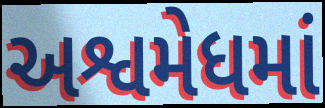
અશ્વમેધમાં